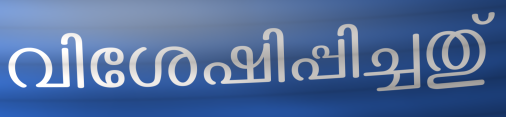
വിശേഷിപ്പിച്ചതു്